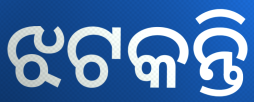
ଝଟକନ୍ତି